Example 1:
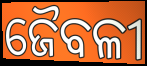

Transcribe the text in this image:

ଜୈବଳୀ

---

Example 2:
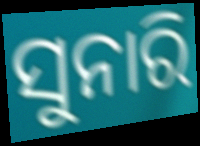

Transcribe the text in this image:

ସୁନାରି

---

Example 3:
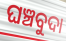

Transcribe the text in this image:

ଘଞ୍ଚବୁଦା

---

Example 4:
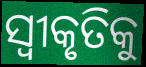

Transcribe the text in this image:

ସ୍ୱୀକୃତିକୁ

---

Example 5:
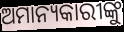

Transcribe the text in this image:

ଅମାନ୍ୟକାରୀଙ୍କୁ